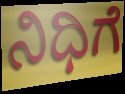
ನಿಧಿಗೆ